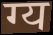
ग्य